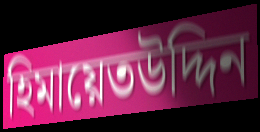
হিমায়েতউদ্দিন